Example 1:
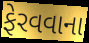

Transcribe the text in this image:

ફેરવવાના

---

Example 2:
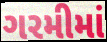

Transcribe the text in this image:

ગરમીમાં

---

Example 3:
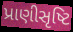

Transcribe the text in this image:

પ્રાણીસૃષ્ટિ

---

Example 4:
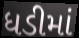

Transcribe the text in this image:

ધડીમાં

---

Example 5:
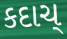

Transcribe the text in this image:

કદાચ્